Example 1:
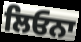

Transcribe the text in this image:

ਲਿਓਨਾ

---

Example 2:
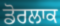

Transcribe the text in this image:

ਡੋਰਲਾਕ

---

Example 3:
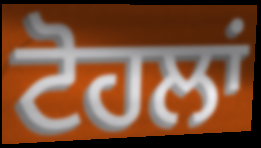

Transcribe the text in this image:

ਟੋਹਲਾਂ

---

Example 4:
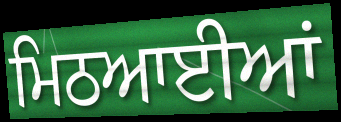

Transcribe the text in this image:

ਮਿਠਆਈਆਂ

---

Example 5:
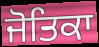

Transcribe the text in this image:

ਜੋਤਿਕਾ